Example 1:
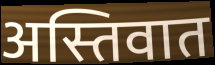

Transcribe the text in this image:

अस्तिवात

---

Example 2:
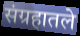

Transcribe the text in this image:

संग्रहातले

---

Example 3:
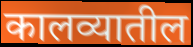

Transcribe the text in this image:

कालव्यातील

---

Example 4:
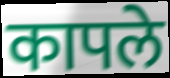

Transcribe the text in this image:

कापले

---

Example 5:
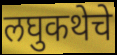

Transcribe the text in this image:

लघुकथेचे